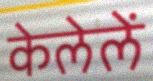
केलेलें